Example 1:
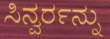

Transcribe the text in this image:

ಸಿನ್ವರ್ರನ್ನು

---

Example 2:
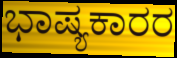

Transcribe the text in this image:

ಭಾಷ್ಯಕಾರರ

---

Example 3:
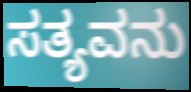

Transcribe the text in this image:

ಸತ್ಯವನು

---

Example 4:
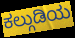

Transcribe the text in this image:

ಕಲ್ಗುಡಿಯ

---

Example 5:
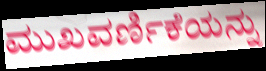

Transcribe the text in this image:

ಮುಖವರ್ಣಿಕೆಯನ್ನು